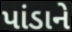
પાંડાને